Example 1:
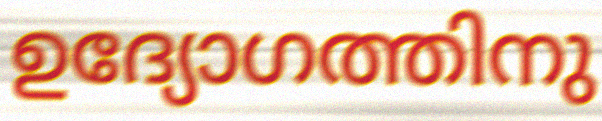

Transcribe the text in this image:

ഉദ്യോഗത്തിനു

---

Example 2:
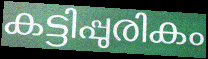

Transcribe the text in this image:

കട്ടിപ്പുരികം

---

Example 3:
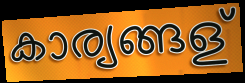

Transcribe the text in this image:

കാര്യങ്ങള്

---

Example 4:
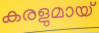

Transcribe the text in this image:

കരളുമായ്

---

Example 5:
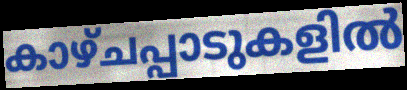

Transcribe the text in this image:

കാഴ്ചപ്പാടുകളിൽ